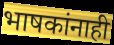
भाषकांनाही